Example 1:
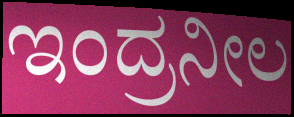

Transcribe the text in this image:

ಇಂದ್ರನೀಲ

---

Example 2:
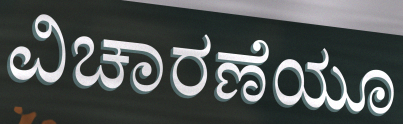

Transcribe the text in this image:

ವಿಚಾರಣೆಯೂ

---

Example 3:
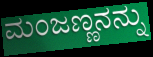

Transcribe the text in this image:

ಮಂಜಣ್ಣನನ್ನು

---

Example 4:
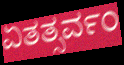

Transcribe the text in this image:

ಏತತ್ಸರ್ವಂ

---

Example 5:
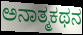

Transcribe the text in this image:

ಅನಾತ್ಮಕಥನ